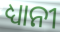
ଧ୍ୟାନୀ